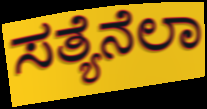
ಸತ್ಯೆನೆಲಾ